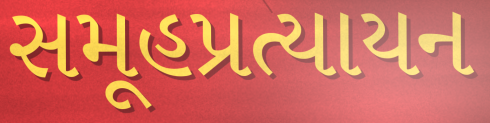
સમૂહપ્રત્યાયન